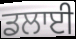
ਡਲਾਈ